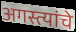
अगस्त्यांचे